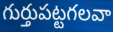
గుర్తుపట్టగలవా